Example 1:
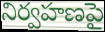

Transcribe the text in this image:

నిర్వహణపై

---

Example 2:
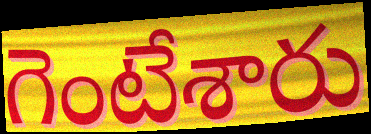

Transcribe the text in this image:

గెంటేశారు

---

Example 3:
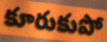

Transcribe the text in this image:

కూరుకుపో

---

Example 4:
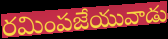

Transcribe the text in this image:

రమింపజేయువాడు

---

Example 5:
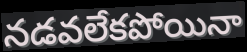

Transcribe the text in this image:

నడవలేకపోయినా